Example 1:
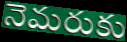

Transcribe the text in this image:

నెమరుకు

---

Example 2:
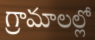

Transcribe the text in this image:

గ్రామాలల్లో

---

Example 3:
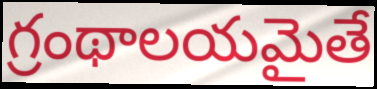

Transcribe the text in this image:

గ్రంథాలయమైతే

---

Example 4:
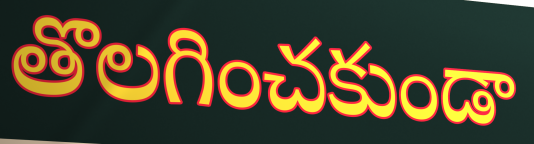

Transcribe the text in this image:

తొలగించకుండా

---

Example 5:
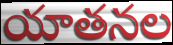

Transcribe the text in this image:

యాతనల